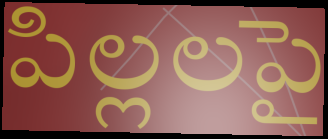
పిల్లలపై